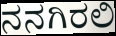
ನನಗಿರಲಿ